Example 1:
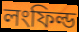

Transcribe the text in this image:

লংফিল্ড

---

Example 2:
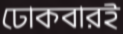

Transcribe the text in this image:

ঢোকবারই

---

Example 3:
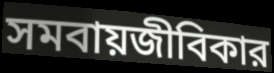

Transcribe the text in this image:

সমবায়জীবিকার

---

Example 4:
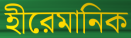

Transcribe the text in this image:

হীরেমানিক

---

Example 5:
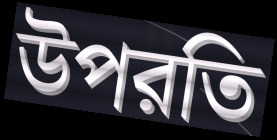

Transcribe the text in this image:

উপরতি